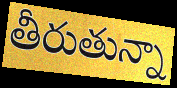
తీరుతున్నా